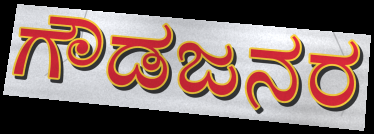
ಗೌಡಜನರ